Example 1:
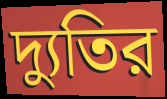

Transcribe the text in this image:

দ্যুতির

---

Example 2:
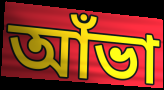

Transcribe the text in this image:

আঁভা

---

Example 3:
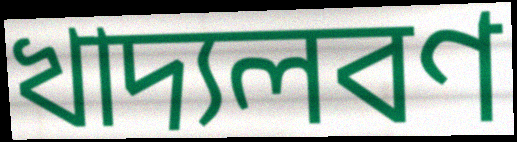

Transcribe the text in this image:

খাদ্যলবণ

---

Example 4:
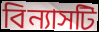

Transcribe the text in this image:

বিন্যাসটি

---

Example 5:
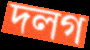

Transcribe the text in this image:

দলগ